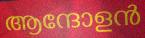
ആന്ദോളൻ